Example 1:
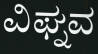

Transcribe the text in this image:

ವಿಘ್ನವ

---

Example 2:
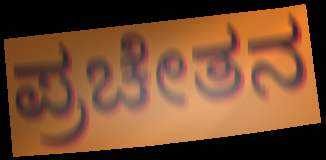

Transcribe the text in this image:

ಪ್ರಚೇತನ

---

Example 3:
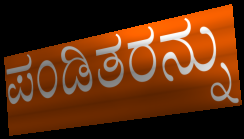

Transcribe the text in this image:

ಪಂಡಿತರನ್ನು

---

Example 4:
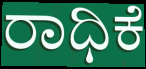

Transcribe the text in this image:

ರಾಧಿಕೆ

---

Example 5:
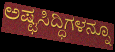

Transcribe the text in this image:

ಅಷ್ಟಸಿದ್ಧಿಗಳನ್ನೂ